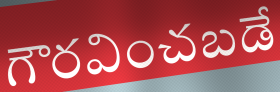
గౌరవించబడే